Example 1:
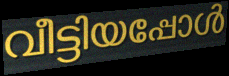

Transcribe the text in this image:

വീട്ടിയപ്പോൾ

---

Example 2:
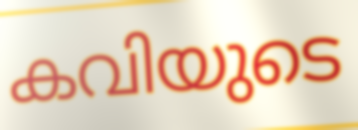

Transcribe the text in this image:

കവിയുടെ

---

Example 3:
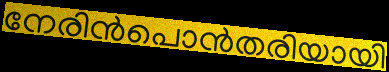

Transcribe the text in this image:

നേരിൻപൊൻതരിയായി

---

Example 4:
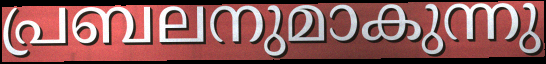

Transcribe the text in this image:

പ്രബലനുമാകുന്നു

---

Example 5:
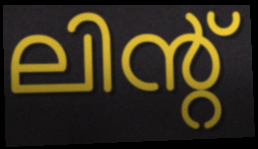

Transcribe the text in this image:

ലിന്റ്